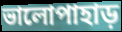
ভালোপাহাড়